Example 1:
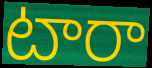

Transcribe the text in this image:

టారా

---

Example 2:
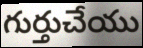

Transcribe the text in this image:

గుర్తుచేయు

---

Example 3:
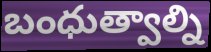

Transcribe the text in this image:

బంధుత్వాల్ని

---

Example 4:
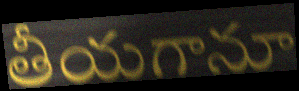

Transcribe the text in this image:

తీయగానూ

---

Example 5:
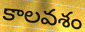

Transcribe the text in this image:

కాలవశం